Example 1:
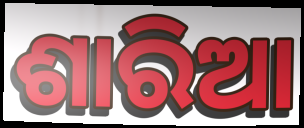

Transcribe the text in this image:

ଶାରିଆ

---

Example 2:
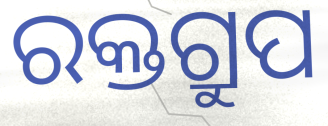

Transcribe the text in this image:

ରକ୍ତଗ୍ରୁପ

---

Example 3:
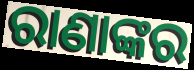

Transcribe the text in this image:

ରାଣାଙ୍କର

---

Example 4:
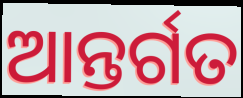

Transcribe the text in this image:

ଆନ୍ତର୍ଗତ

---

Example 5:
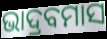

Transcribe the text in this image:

ଭାଦ୍ରବମାସ